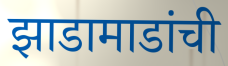
झाडामाडांची